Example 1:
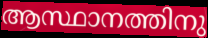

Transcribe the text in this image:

ആസ്ഥാനത്തിനു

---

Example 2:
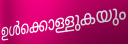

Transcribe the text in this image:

ഉൾക്കൊള്ളുകയും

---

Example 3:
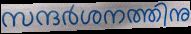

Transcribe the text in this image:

സന്ദർശനത്തിനു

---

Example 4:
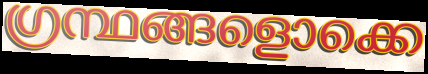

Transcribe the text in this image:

ഗ്രന്ഥങ്ങളൊക്കെ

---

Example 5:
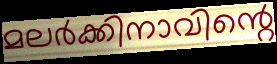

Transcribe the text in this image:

മലർക്കിനാവിന്റെ